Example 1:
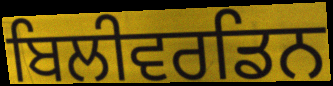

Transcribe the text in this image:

ਬਿਲੀਵਰਡਿਨ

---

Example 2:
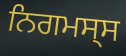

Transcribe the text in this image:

ਨਿਗਮਸ੍ਸ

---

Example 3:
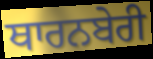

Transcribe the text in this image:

ਥਾਰਨਬੇਰੀ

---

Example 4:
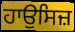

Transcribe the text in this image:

ਹਾਉਸਿਜ਼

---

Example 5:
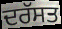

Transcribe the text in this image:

ਦਰੱਸਤ